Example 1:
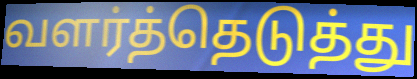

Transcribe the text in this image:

வளர்த்தெடுத்து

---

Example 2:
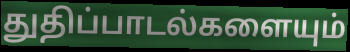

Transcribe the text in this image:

துதிப்பாடல்களையும்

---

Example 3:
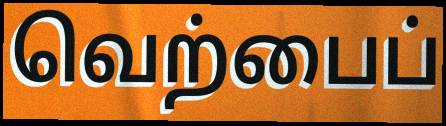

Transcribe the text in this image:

வெற்பைப்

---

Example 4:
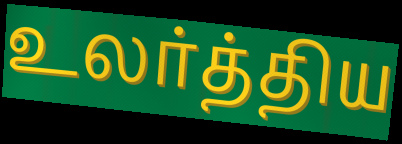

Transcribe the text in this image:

உலர்த்திய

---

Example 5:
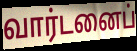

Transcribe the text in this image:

வார்டனைப்